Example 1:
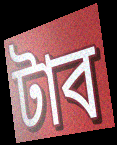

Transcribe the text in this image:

টাব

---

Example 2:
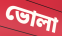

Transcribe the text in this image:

ভোলা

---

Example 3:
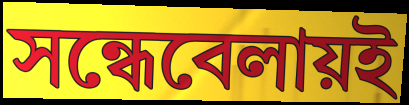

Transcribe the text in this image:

সন্ধেবেলায়ই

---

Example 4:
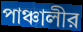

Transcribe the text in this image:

পাঞ্চালীর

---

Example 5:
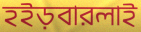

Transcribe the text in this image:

হইড়বারলাই